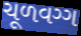
ચૂળવગ્ગ